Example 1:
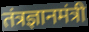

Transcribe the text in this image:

तंत्रज्ञानमंत्री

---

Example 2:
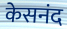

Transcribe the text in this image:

केसनंद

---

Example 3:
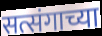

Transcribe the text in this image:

सत्संगाच्या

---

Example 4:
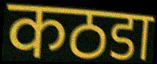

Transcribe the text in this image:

कठडा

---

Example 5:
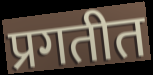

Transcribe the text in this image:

प्रगतीत